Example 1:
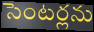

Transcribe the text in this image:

సెంటర్లను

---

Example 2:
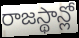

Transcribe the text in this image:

రాజస్థాన్లో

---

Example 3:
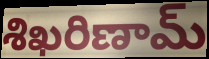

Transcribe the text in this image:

శిఖరిణామ్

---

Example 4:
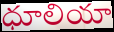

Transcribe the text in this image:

ధూలియా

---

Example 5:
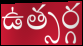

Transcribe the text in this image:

ఉత్సర్గ